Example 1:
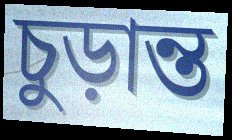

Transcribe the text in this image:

চুড়ান্ত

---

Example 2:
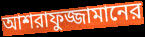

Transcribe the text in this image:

আশরাফুজ্জামানের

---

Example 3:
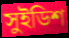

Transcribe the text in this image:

সুইডিশ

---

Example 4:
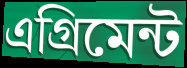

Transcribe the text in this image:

এগ্রিমেন্ট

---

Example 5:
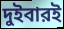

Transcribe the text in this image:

দুইবারই